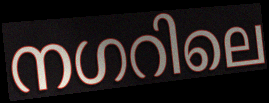
നഗറിലെ